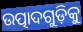
ଉତ୍ପାଦଗୁଡ଼ିକୁ